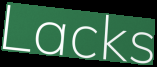
Lacks